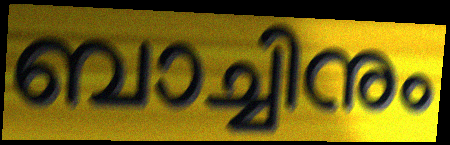
ബാച്ചിനും